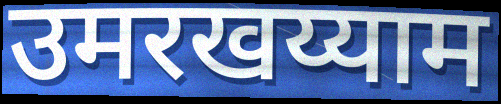
उमरखय्याम